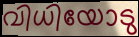
വിധിയോടു